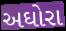
અઘોરા